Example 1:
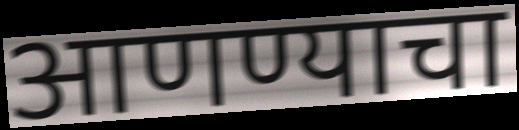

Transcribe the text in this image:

आणण्याचा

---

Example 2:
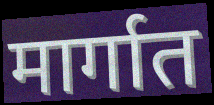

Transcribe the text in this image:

मार्गात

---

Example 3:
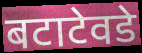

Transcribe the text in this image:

बटाटेवडे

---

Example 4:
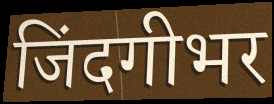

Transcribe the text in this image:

जिंदगीभर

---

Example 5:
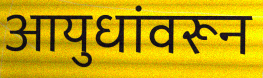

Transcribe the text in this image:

आयुधांवरून